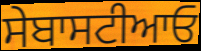
ਸੇਬਾਸਟੀਆਓ